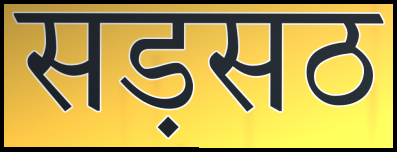
सड़सठ